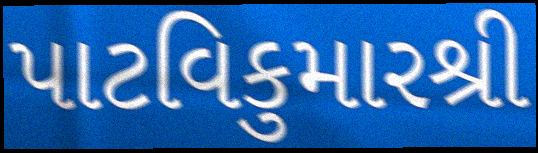
પાટવિકુમારશ્રી